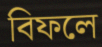
বিফলে